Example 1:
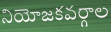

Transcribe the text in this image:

నియోజకవర్గాల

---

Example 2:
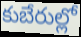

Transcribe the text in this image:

కుబేరుల్లో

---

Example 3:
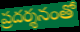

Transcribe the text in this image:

ప్రదర్శనంతో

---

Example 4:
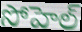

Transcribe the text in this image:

సోహెల్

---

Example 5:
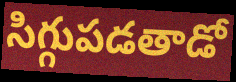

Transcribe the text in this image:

సిగ్గుపడతాడో